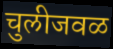
चुलीजवळ